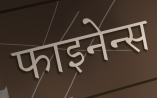
फाइनेन्स